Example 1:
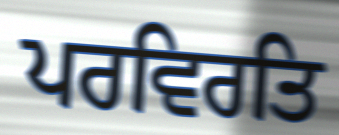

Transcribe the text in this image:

ਪਰਵਿਰਤਿ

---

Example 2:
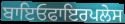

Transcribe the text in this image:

ਬਾਇਓਫਾਇਰਪਲੇਸ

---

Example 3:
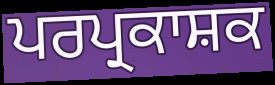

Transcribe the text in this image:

ਪਰਪ੍ਰਕਾਸ਼ਕ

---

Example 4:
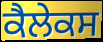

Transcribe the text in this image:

ਕੈਲੇਕਸ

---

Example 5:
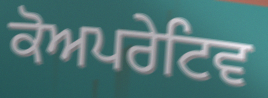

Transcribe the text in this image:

ਕੋਅਪਰੇਟਿਵ